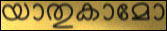
യാതുകാമോ